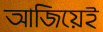
আজিয়েই